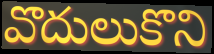
వొదులుకొని